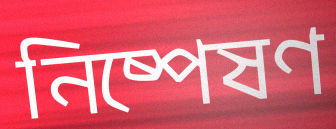
নিষ্পেষণ